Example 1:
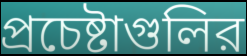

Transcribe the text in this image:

প্রচেষ্টাগুলির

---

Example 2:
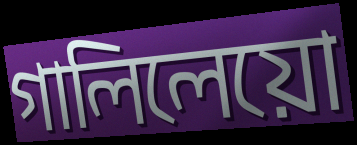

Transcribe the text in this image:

গালিলেয়ো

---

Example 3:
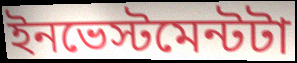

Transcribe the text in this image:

ইনভেস্টমেন্টটা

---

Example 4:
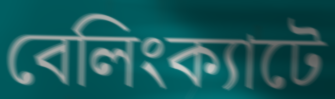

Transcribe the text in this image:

বেলিংক্যাটে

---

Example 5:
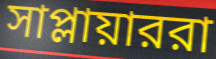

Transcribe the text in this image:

সাপ্লায়াররা